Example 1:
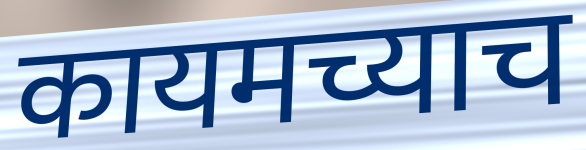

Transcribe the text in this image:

कायमच्याच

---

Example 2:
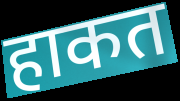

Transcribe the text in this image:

हाकत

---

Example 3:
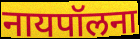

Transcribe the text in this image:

नायपॉलना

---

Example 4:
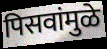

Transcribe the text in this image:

पिसवांमुळे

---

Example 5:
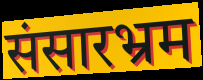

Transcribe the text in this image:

संसारभ्रम